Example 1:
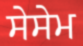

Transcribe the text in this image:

ਸੇਸੇਮ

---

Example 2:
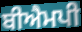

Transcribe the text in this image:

ਬੀਐਮਪੀ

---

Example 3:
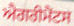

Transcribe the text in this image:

ਐਗਰੀਮੈਂਟਸ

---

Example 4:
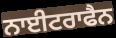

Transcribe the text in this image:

ਨਾਈਟਰਾਫੈਨ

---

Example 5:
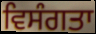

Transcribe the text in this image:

ਵਿਸੰਗਤਾ